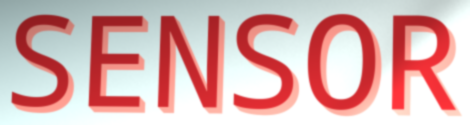
SENSOR